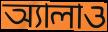
অ্যালাও